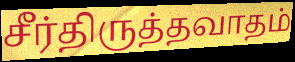
சீர்திருத்தவாதம்